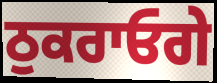
ਠੁਕਰਾਓਗੇ